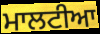
ਮਾਲਟੀਆ